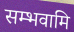
सम्भवामि